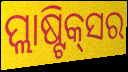
ପ୍ଲାଷ୍ଟିକ୍‌ସର